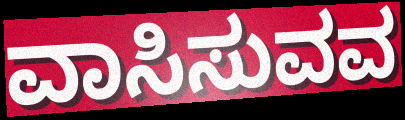
ವಾಸಿಸುವವ